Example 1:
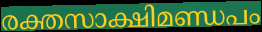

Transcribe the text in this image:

രക്തസാക്ഷിമണ്ഡപം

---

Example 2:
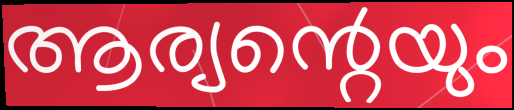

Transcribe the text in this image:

ആര്യന്റെയും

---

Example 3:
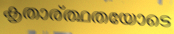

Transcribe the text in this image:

കൃതാര്ത്ഥതയോടെ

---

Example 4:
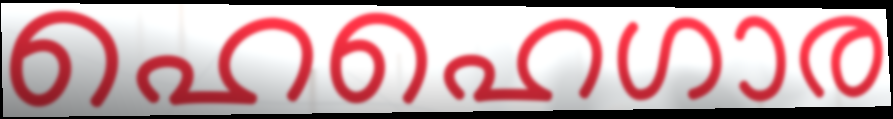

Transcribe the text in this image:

ഹെഹെഗാര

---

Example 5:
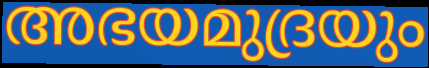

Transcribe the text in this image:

അഭയമുദ്രയും